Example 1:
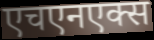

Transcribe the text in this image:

एचएनएक्स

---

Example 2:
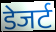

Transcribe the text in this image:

डेजर्ट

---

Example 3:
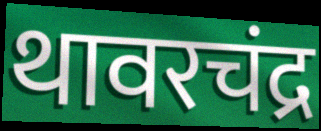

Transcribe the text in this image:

थावरचंद्र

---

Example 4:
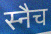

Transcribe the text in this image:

स्नैच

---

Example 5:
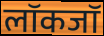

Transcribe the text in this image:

लॉकजॉ